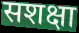
सशक्षा